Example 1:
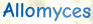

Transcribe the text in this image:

Allomyces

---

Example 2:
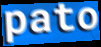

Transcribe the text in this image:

pato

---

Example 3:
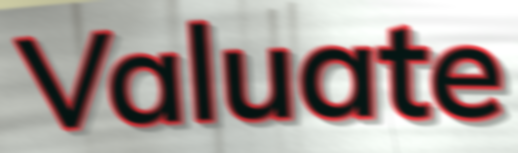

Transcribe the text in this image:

Valuate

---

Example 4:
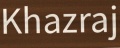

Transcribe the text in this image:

Khazraj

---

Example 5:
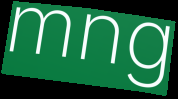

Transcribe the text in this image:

mng